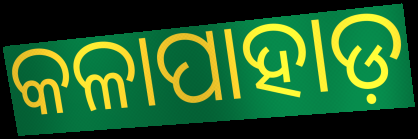
କଳାପାହାଡ଼